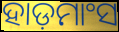
ହାଡ଼ମାଂସ